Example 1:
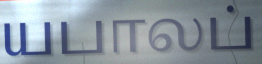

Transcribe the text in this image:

யபாலப்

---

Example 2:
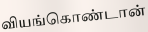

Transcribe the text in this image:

வியங்கொண்டான்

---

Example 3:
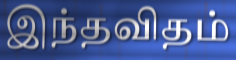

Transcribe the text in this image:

இந்தவிதம்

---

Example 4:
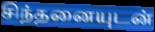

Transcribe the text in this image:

சிந்தனையுடன்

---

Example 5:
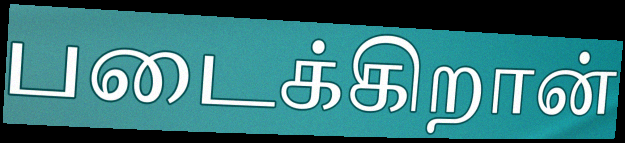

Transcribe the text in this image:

படைக்கிறான்